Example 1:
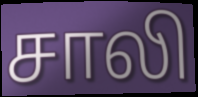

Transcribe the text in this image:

சாலி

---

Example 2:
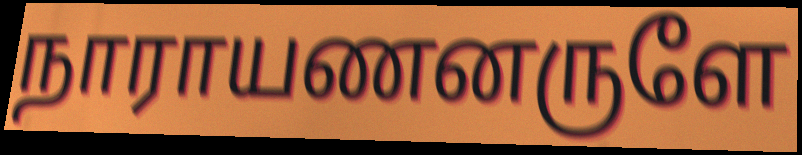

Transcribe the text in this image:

நாராயணனருளே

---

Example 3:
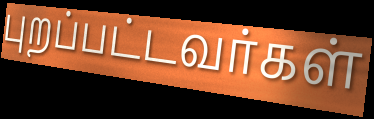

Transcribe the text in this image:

புறப்பட்டவர்கள்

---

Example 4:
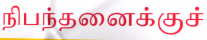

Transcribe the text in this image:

நிபந்தனைக்குச்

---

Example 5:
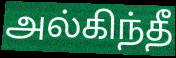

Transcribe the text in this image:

அல்கிந்தீ